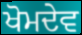
ਖੋਮਦੇਵ